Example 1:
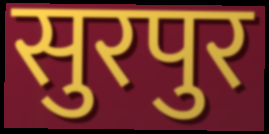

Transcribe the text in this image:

सुरपुर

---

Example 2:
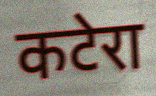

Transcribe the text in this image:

कटेरा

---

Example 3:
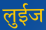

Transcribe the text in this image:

लुईज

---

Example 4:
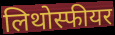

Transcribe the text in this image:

लिथोस्फीयर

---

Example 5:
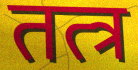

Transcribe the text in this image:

तत्त्र